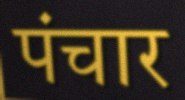
पंचार